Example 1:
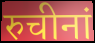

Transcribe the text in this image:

रुचीनां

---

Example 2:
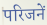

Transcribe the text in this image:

परिजनें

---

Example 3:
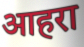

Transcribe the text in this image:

आहरा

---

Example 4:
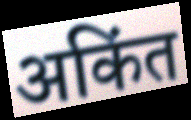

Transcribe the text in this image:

अकिंत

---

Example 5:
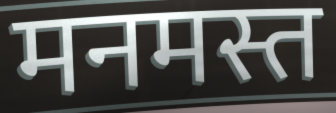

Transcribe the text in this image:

मनमस्त